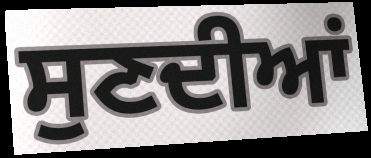
ਸੁਣਦੀਆਂ